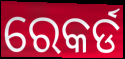
ରେକର୍ଡ